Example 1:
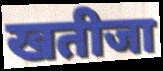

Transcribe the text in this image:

खतीजा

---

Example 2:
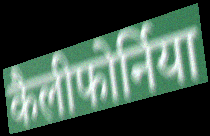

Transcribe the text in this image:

कैलीफोर्निया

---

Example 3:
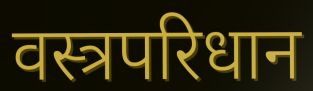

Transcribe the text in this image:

वस्त्रपरिधान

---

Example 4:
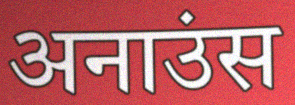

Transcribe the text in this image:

अनाउंस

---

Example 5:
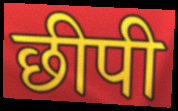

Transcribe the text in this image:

छीपी